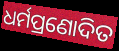
ଧର୍ମପ୍ରଣୋଦିତ